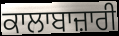
ਕਾਲਾਬਾਜ਼ਾਰੀ